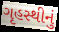
ગૃહસ્થીનું